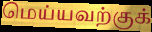
மெய்யவற்குக்